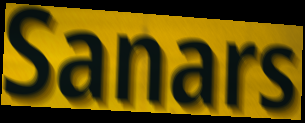
Sanars